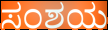
ಸಂಶಯ